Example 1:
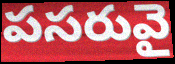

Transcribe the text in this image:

పసరువై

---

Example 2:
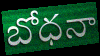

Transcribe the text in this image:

బోధనా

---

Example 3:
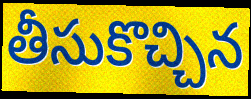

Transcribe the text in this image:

తీసుకొచ్చిన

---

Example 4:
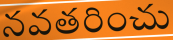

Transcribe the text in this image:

నవతరించు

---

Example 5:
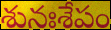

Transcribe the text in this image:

శునఃశేపం